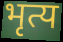
भृत्य